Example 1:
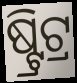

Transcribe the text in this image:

ଷ୍ଟ୍ରିଟ୍ର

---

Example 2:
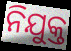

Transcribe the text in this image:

ନିଯୁକ୍ତ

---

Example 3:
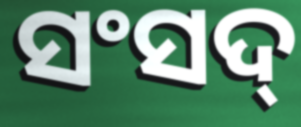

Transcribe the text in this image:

ସଂସଦ୍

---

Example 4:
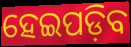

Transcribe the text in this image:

ହେଇପଡ଼ିବ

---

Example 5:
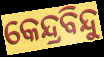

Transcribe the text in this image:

କେନ୍ଦ୍ରବିନ୍ଦୁ